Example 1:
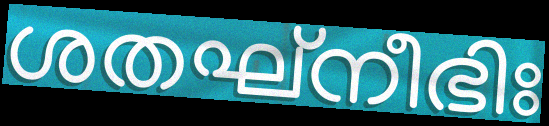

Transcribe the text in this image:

ശതഘ്നീഭിഃ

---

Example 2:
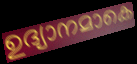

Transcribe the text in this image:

ഉദ്യാനമാകെ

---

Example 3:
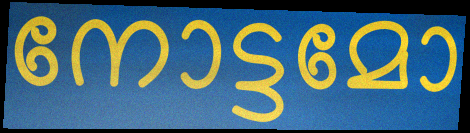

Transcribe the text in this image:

നോട്ടമോ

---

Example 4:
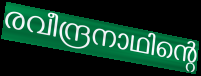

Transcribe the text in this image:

രവീന്ദ്രനാഥിന്റെ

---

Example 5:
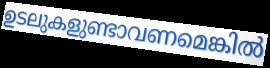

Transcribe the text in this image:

ഉടലുകളുണ്ടാവണമെങ്കിൽ